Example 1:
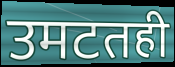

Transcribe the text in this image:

उमटतही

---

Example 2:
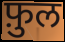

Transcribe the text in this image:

फ़ुल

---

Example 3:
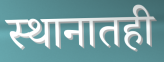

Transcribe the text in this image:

स्थानातही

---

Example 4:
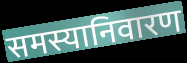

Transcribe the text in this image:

समस्यानिवारण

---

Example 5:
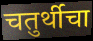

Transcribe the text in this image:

चतुर्थीचा